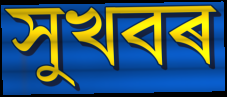
সুখবৰ